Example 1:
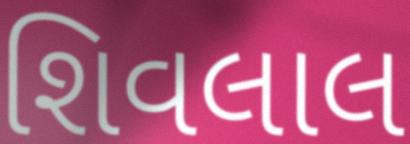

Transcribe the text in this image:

શિવલાલ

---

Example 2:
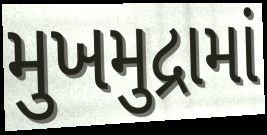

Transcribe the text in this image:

મુખમુદ્રામાં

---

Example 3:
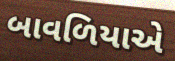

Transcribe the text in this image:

બાવળિયાએ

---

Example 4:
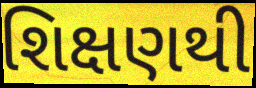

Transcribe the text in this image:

શિક્ષણથી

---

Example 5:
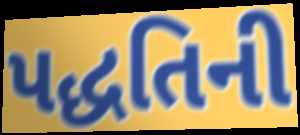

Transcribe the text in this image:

પદ્ધતિની